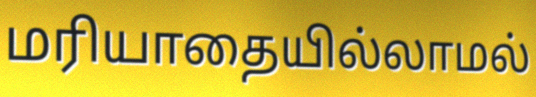
மரியாதையில்லாமல்